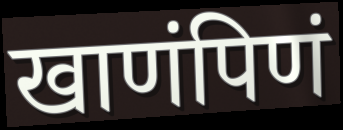
खाणंपिणं